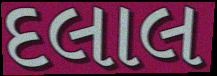
દલાલ